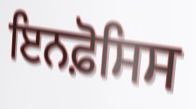
ਇਨਫ਼ੋਸਿਸ